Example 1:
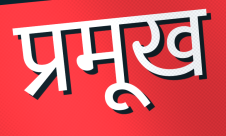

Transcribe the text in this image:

प्रमूख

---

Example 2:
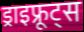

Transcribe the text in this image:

ड्राइफ्रूट्स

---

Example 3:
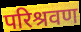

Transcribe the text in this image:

परिश्रवण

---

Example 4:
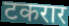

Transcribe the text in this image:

टकरार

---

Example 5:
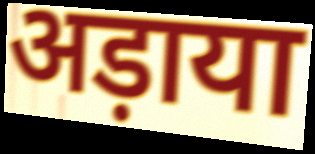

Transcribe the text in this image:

अड़ाया